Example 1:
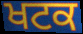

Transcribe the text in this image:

ਖਟਕ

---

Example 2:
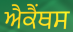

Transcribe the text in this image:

ਐਕੈਂਥਸ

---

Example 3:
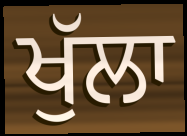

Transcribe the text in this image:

ਖੁੱਲਾ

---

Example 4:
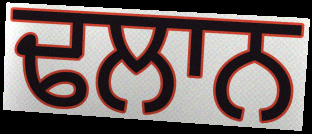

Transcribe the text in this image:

ਢਲਾਨ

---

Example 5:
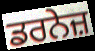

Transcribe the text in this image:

ਡਰਨੇਜ਼